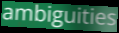
ambiguities